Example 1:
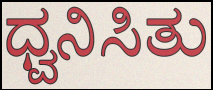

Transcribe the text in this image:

ಧ್ವನಿಸಿತು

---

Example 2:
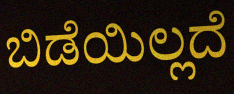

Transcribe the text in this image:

ಬಿಡೆಯಿಲ್ಲದೆ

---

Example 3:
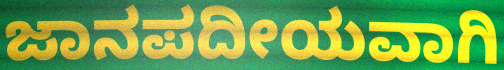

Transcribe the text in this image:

ಜಾನಪದೀಯವಾಗಿ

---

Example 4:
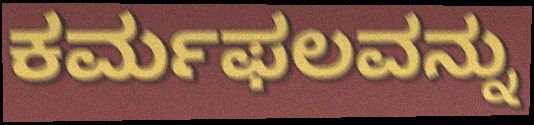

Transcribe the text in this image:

ಕರ್ಮಫಲವನ್ನು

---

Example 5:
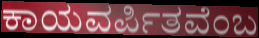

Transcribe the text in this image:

ಕಾಯವರ್ಪಿತವೆಂಬ